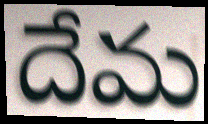
దేమ